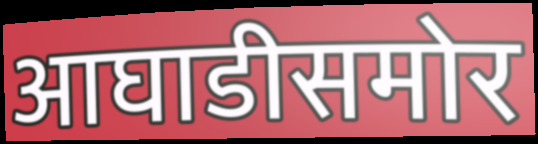
आघाडीसमोर